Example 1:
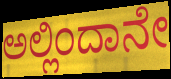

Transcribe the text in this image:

ಅಲ್ಲಿಂದಾನೇ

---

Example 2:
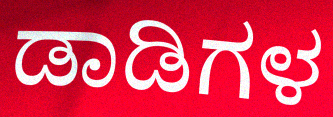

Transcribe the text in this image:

ಡಾಡಿಗಳ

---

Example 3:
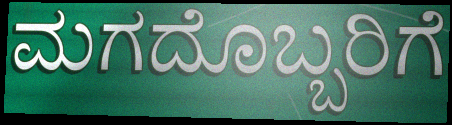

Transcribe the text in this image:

ಮಗದೊಬ್ಬರಿಗೆ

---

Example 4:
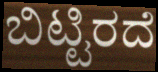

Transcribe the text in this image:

ಬಿಟ್ಟಿರದೆ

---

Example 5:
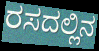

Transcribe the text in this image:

ರಸದಲ್ಲಿನ